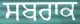
ਸਬਰਾਕ